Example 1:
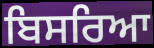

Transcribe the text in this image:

ਬਿਸਰਿਆ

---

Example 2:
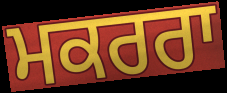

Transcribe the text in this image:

ਮਕਰਰਾ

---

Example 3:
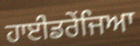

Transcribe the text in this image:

ਹਾਈਡਰੇਂਜਿਆ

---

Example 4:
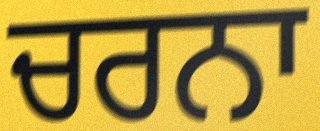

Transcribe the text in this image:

ਚਰਨਾ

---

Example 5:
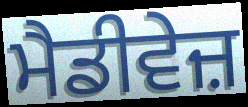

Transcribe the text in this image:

ਮੈਡੀਵੇਜ਼